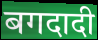
बगदादी